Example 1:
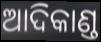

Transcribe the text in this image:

ଆଦିକାଣ୍ଡ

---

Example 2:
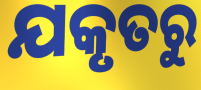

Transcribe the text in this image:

ଯକୃତରୁ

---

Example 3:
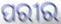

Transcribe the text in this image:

ପରୀର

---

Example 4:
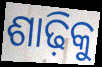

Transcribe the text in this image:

ଶାଢ଼ିକୁ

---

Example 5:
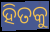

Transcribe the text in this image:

ହିତକୁ